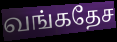
வங்கதேச